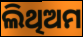
ଲିଥିଅମ